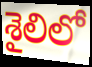
శైలిలో